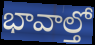
భావాల్తో